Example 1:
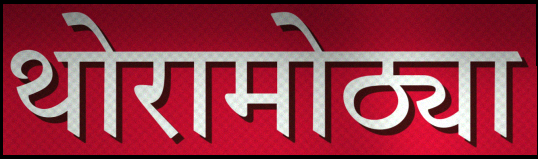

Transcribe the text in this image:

थोरामोठ्या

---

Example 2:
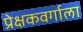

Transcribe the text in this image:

प्रेक्षकवर्गाला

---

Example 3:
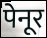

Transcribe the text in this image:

पेनूर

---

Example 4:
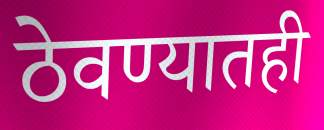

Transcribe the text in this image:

ठेवण्यातही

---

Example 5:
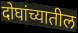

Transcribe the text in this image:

दोघांच्यातील